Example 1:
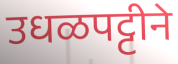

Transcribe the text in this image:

उधळपट्टीने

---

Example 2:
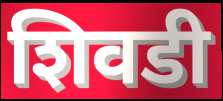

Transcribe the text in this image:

शिवडी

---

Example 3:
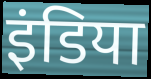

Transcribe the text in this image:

इंडिया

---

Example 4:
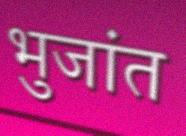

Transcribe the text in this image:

भुजांत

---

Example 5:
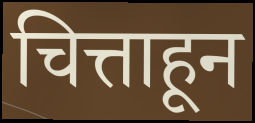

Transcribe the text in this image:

चित्ताहून